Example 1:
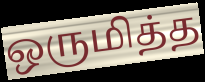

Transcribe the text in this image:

ஒருமித்த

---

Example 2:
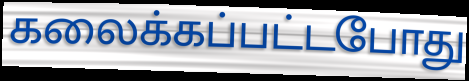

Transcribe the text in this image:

கலைக்கப்பட்டபோது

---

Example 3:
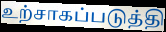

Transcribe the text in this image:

உற்சாகப்படுத்தி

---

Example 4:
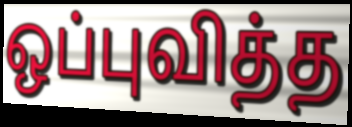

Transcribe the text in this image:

ஒப்புவித்த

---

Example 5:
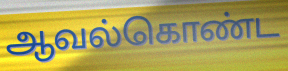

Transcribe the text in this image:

ஆவல்கொண்ட